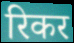
रिकर